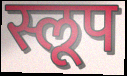
स्लूप